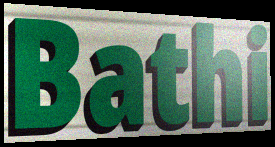
Bathi